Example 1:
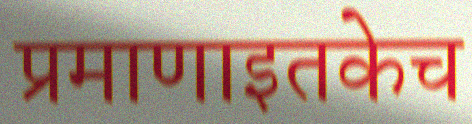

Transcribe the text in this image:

प्रमाणाइतकेच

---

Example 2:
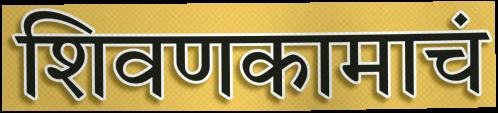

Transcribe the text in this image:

शिवणकामाचं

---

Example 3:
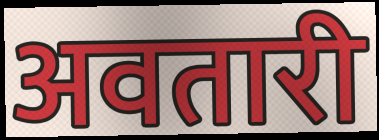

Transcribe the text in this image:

अवतारी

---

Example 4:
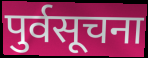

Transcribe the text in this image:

पुर्वसूचना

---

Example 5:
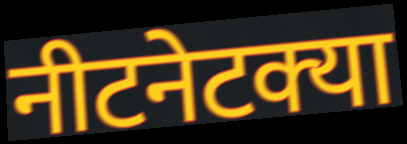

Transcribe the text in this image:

नीटनेटक्‍या